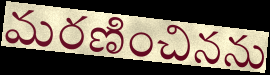
మరణించినను